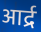
आर्द्र